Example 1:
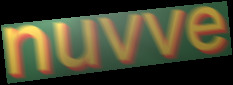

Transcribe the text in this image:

nuvve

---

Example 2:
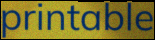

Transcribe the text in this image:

printable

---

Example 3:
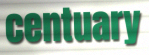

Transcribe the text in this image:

centuary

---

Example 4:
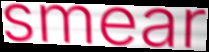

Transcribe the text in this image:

smear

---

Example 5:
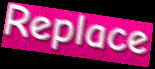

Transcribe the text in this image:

Replace